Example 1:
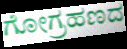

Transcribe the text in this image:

ಗೋಗ್ರಹಣದ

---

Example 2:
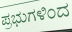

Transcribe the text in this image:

ಪ್ರಭುಗಳಿಂದ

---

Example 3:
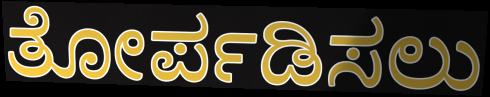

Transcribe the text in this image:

ತೋರ್ಪಡಿಸಲು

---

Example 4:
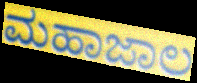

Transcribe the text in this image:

ಮಹಾಜಾಲ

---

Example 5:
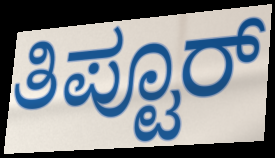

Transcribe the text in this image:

ತಿಪ್ಟೂರ್